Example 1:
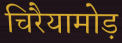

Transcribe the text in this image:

चिरैयामोड़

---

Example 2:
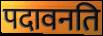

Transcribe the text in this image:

पदावनति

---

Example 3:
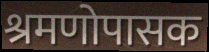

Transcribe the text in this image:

श्रमणोपासक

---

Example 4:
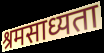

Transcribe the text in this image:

श्रमसाध्यता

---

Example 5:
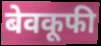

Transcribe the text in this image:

बेवकूफी